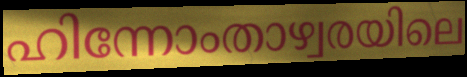
ഹിന്നോംതാഴ്വരയിലെ